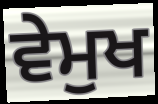
ਵੇਮੁਖ